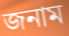
জনাম